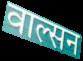
वाल्सन